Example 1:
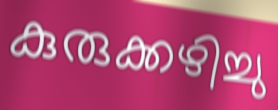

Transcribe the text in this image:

കുരുക്കഴിച്ചു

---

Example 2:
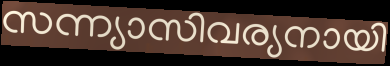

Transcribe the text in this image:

സന്ന്യാസിവര്യനായി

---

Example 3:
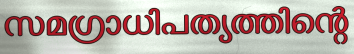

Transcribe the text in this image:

സമഗ്രാധിപത്യത്തിന്റെ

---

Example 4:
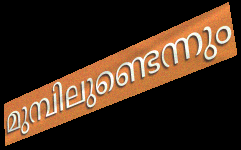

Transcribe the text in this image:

മുമ്പിലുണ്ടെന്നും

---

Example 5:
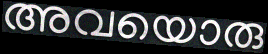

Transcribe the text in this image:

അവയൊരു